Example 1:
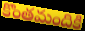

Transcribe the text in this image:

కొంతమందికి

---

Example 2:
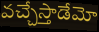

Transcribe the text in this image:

వచ్చేస్తాడేమో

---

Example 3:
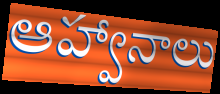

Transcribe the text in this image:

ఆహ్వానాలు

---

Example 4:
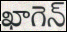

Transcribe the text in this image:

ఖాగెన్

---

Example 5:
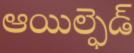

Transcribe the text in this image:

ఆయిల్ఫెడ్